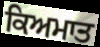
ਕਿਅਮਾਤ